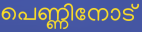
പെണ്ണിനോട്